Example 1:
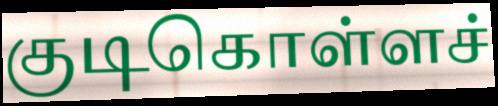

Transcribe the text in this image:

குடிகொள்ளச்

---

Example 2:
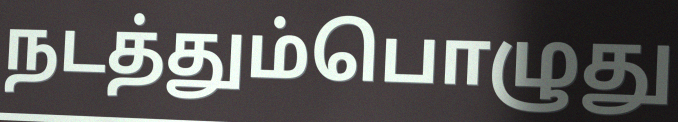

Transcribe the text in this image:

நடத்தும்பொழுது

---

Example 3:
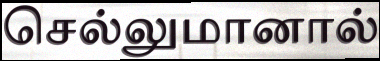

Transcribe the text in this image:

செல்லுமானால்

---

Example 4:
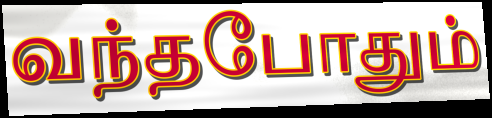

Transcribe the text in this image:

வந்தபோதும்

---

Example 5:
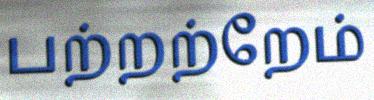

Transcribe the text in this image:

பற்றற்றேம்